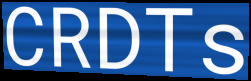
CRDTs